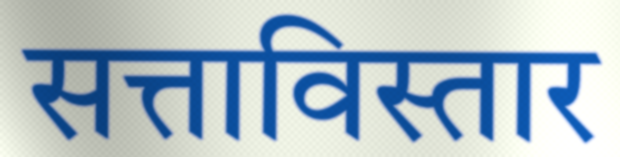
सत्ताविस्तार